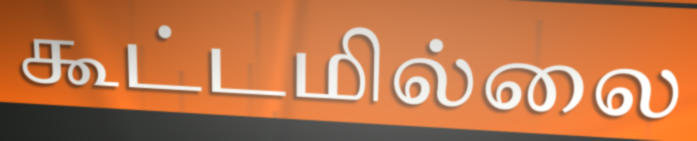
கூட்டமில்லை